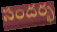
సందర్భ